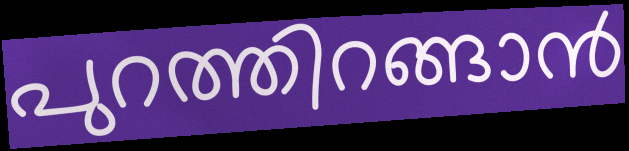
പുറത്തിറങ്ങാൻ